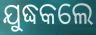
ଯୁଦ୍ଧକଲେ